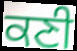
ਕਣੀ